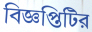
বিজ্ঞপ্তিটির